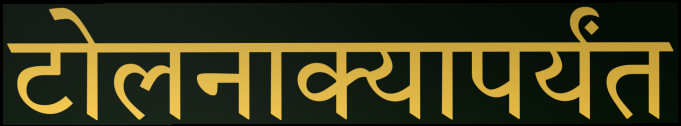
टोलनाक्यापर्यंत